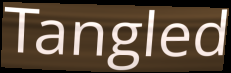
Tangled